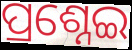
ପ୍ରଶ୍ନେଇ